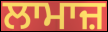
ਲਾਮਾਜ਼